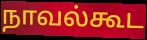
நாவல்கூட